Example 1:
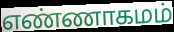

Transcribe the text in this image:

எண்ணாகமம்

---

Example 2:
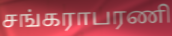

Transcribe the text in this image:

சங்கராபரணி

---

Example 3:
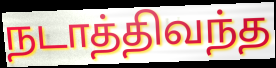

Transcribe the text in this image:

நடாத்திவந்த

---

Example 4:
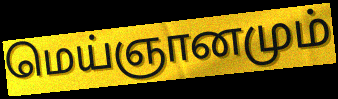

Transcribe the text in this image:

மெய்ஞானமும்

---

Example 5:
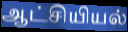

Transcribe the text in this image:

ஆட்சியியல்